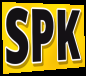
SPK